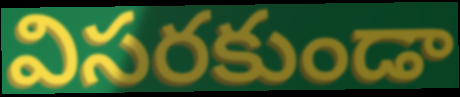
విసరకుండా